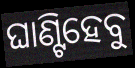
ଘାଣ୍ଟିହେବୁ